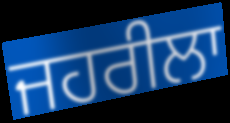
ਜਹਰੀਲਾ